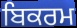
ਬਿਕਰਮ